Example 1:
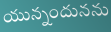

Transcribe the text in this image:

యున్నందునను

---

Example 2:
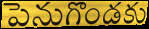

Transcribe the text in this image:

పెనుగొండకు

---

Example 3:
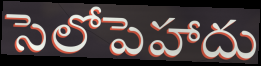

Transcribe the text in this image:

సెలోపెహాదు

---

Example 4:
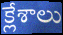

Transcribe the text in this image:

క్లేశాలు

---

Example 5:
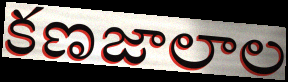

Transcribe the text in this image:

కణజాలాల